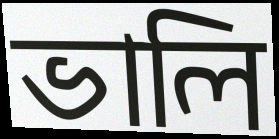
ভালি